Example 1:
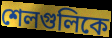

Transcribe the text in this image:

শেলগুলিকে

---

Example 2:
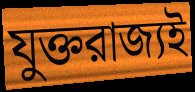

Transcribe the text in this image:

যুক্তরাজ্যই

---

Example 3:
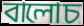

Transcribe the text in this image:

বালোচ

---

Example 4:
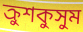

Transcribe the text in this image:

ক্রুশকুসুম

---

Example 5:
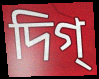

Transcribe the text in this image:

দিগ্